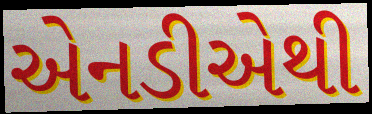
એનડીએથી